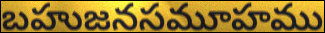
బహుజనసమూహము